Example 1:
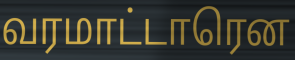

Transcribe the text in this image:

வரமாட்டாரென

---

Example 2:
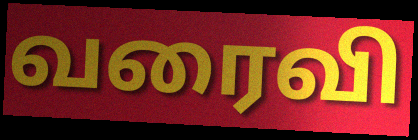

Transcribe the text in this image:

வரைவி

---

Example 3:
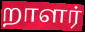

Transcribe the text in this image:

றாளர்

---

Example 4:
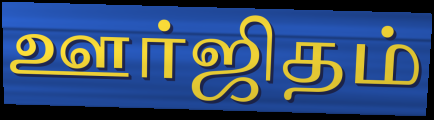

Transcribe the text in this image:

ஊர்ஜிதம்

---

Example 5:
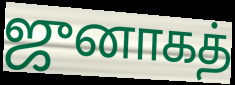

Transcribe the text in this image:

ஜுனாகத்